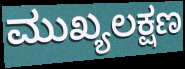
ಮುಖ್ಯಲಕ್ಷಣ